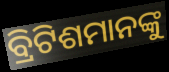
ବ୍ରିଟିଶମାନଙ୍କୁ